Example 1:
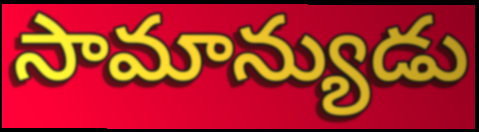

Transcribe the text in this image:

సామాన్యుడు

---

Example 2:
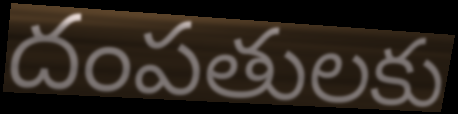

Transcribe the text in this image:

దంపతులకు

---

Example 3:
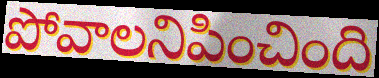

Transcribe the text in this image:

పోవాలనిపించింది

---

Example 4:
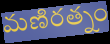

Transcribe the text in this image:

మణిరత్నం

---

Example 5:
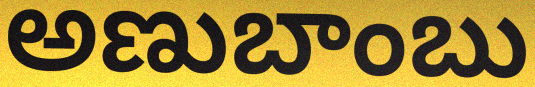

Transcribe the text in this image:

అణుబాంబు